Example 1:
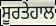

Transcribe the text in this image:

ਸੂਰਤੇਹਾਲ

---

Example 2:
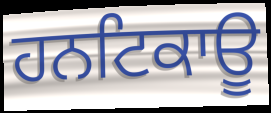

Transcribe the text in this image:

ਹਨਟਿਕਾਊ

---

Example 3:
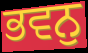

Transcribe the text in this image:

ਭਵਨੁ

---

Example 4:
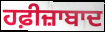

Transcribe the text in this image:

ਹਫ਼ੀਜ਼ਾਬਾਦ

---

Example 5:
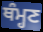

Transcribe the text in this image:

ਥੰਮ੍ਹਣ